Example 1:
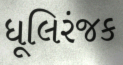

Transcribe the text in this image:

ધૂલિરંજક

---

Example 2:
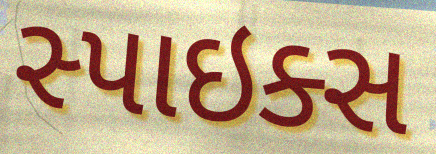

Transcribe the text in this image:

સ્પાઇક્સ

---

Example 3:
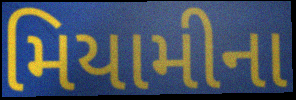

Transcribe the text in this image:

મિયામીના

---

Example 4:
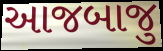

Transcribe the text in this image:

આજબાજુ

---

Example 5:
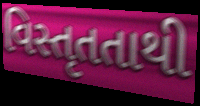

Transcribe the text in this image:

વિસ્તૃતતાથી